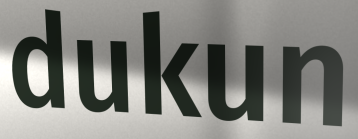
dukun